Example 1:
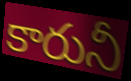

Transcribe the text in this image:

కారునీ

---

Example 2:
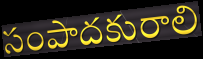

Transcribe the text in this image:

సంపాదకురాలి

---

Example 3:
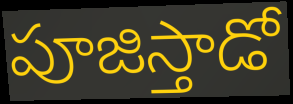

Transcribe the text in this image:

పూజిస్తాడో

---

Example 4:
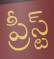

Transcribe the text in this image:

ప్రీస్ట్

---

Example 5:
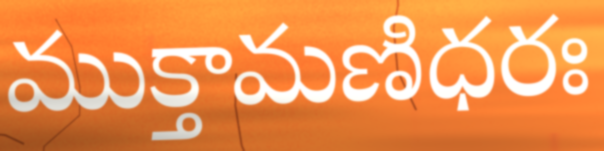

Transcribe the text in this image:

ముక్తామణిధరః